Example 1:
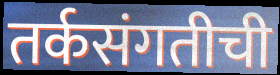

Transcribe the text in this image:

तर्कसंगतीची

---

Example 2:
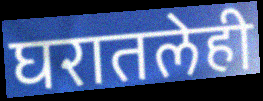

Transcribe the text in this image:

घरातलेही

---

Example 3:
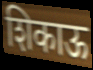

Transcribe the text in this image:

शिकाऊ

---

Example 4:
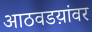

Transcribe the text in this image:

आठवडय़ांवर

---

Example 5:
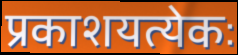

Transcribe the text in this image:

प्रकाशयत्येकः